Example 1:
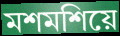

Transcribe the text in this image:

মশমশিয়ে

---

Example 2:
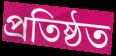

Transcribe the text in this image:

প্রতিষ্ঠত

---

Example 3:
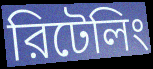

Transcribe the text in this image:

রিটেলিং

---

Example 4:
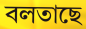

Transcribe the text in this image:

বলতাছে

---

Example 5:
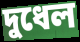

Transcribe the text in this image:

দুধেল